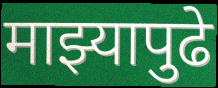
माझ्यापुढे